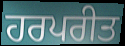
ਹਰਪਰੀਤ